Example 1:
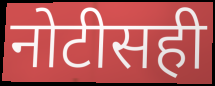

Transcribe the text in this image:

नोटीसही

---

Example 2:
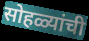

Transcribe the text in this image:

सोहळ्यांची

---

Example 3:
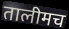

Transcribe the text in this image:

तालीमच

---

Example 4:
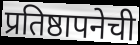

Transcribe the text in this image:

प्रतिष्ठापनेची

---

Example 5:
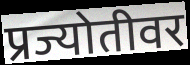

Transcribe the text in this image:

प्रज्योतीवर